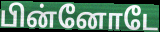
பின்னோடே